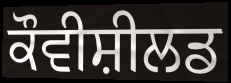
ਕੌਵੀਸ਼ੀਲਡ